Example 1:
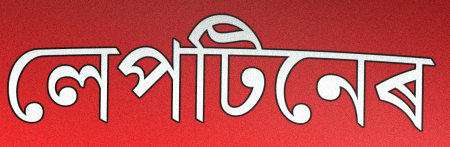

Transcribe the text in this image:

লেপটিনেৰ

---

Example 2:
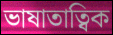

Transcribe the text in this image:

ভাষাতাত্বিক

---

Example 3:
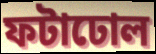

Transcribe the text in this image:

ফটাঢোল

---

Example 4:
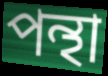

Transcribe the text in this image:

পন্থা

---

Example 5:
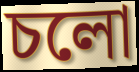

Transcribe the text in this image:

চলো